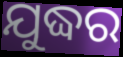
ଯୁଦ୍ଧର